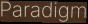
Paradigm